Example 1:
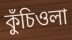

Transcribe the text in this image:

কুঁচিওলা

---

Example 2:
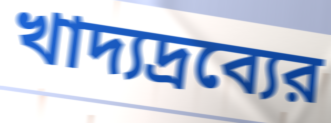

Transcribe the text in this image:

খাদ্যদ্রব্যের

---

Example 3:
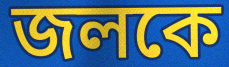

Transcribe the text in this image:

জলকে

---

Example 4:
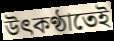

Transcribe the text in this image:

উৎকণ্ঠাতেই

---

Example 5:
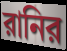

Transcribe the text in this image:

রানির